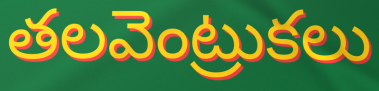
తలవెంట్రుకలు